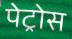
पेट्रोस